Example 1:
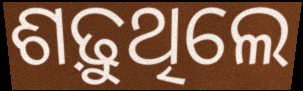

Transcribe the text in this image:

ଶଢ଼ୁଥିଲେ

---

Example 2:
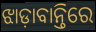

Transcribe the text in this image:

ଝାଡ଼ାବାନ୍ତିରେ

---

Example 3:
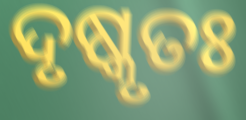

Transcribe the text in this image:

ଦୃଷ୍କୃତଃ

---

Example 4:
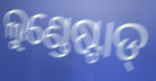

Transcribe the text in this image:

ଲୁଣ୍ଡେଷ୍ଟାଡ୍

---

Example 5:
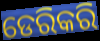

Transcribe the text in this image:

ଡେରିକରି